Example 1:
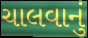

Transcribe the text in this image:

ચાલવાનું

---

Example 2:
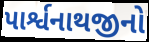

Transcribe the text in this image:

પાર્શ્વનાથજીનો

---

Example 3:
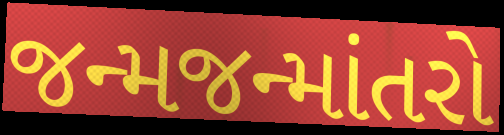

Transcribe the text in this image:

જન્મજન્માંતરો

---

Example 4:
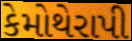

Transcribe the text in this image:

કેમોથેરાપી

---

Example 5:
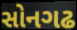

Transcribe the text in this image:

સોનગઢ